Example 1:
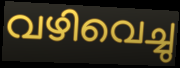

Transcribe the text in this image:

വഴിവെച്ചു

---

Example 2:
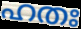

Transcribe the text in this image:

ഹതഃ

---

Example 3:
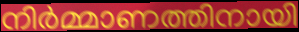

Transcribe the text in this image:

നിർമ്മാണത്തിനായി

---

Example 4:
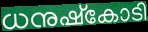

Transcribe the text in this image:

ധനുഷ്കോടി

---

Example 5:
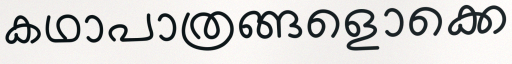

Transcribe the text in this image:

കഥാപാത്രങ്ങളൊക്കെ